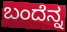
ಬಂದೆನ್ನ